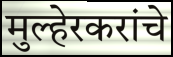
मुल्हेरकरांचे